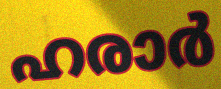
ഹരാർ